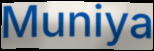
Muniya